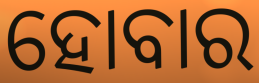
ହୋବାର